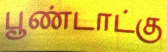
பூண்டாட்கு